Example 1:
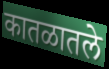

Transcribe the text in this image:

कातळातले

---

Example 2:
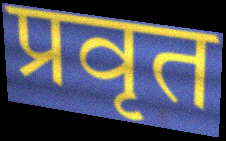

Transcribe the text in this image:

प्रवृत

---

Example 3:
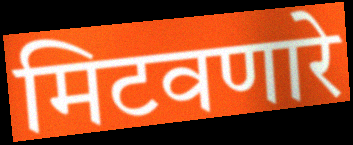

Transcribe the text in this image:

मिटवणारे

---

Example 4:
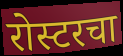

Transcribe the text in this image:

रोस्टरचा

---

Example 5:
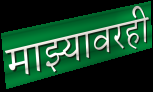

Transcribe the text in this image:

माझ्यावरही